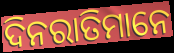
ଦିନରାତିମାନେ